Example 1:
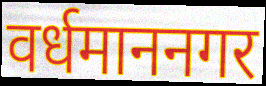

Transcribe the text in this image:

वर्धमाननगर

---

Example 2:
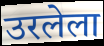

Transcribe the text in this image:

उरलेला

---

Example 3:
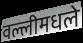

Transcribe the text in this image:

वल्लीमधले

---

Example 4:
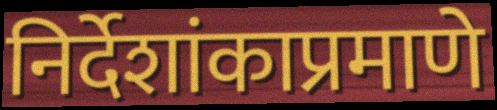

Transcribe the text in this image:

निर्देशांकाप्रमाणे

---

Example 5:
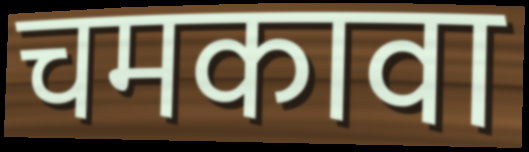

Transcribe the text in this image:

चमकावा